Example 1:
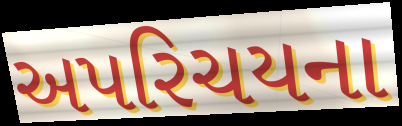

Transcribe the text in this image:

અપરિચયના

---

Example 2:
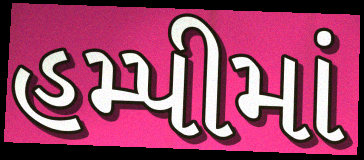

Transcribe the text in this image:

હમ્પીમાં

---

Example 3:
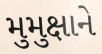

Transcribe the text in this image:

મુમુક્ષાને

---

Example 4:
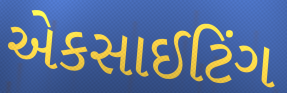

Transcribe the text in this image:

એકસાઈટિંગ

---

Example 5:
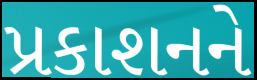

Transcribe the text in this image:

પ્રકાશનને